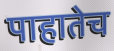
पाहातेच